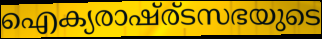
ഐക്യരാഷ്ര്ടസഭയുടെ